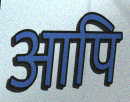
आपि